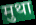
मुथा